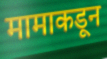
मामाकडून